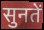
सुनतें